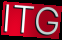
ITG